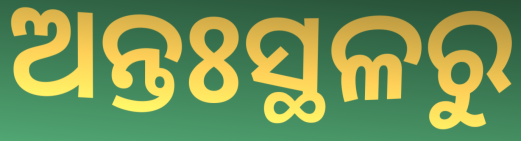
ଅନ୍ତଃସ୍ଥଳରୁ